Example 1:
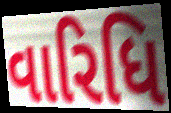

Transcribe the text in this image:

વારિધિ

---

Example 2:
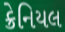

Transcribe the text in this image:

ક્રેનિયલ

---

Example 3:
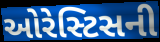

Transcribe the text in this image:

ઓરેસ્ટિસની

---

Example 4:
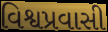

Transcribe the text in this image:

વિશ્વપ્રવાસી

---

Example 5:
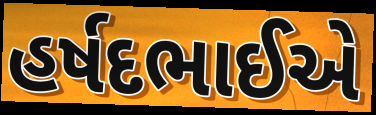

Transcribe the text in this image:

હર્ષદભાઈએ